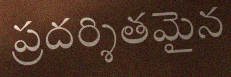
ప్రదర్శితమైన